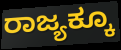
ರಾಜ್ಯಕ್ಕೂ